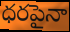
ధరపైనా